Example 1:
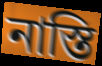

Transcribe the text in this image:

নাস্তি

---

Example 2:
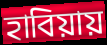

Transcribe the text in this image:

হাবিয়ায়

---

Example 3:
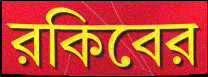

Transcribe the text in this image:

রকিবের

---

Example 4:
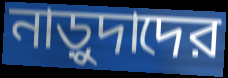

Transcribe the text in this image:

নাড়ুদাদের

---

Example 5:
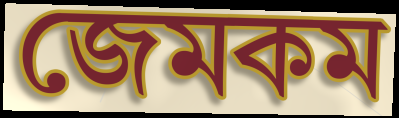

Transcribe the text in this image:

জেমকম